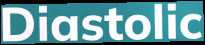
Diastolic